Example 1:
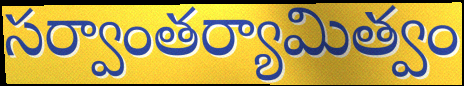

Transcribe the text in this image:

సర్వాంతర్యామిత్వం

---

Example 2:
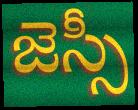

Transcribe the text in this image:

జెస్సీ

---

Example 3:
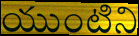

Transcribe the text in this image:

యుంటిని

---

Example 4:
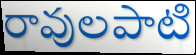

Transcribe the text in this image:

రావులపాటి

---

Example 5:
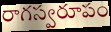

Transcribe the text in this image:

రాగస్వరూపం